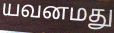
யவனமது